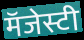
मॅजेस्टी